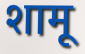
शामू